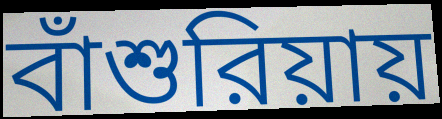
বাঁশুরিয়ায়